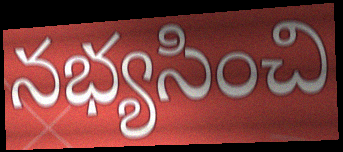
నభ్యసించి